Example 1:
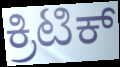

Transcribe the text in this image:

ಕ್ರಿಟಿಕ್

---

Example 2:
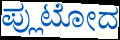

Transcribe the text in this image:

ಪ್ಲುಟೋದ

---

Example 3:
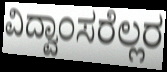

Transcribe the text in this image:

ವಿದ್ವಾಂಸರೆಲ್ಲರ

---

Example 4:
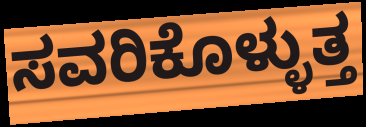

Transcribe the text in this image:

ಸವರಿಕೊಳ್ಳುತ್ತ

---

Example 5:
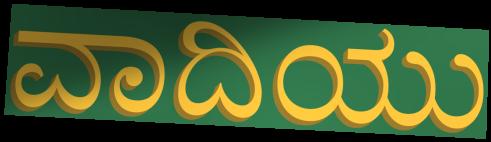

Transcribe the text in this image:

ವಾದಿಯು